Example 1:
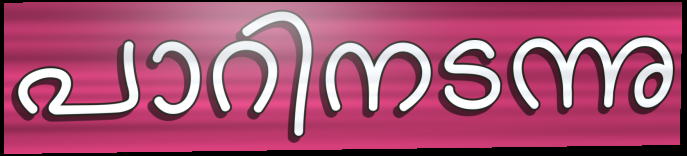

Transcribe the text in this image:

പാറിനടന്നു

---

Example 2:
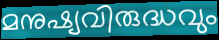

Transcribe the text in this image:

മനുഷ്യവിരുദ്ധവും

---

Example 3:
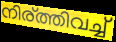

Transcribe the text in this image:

നിര്ത്തിവച്ച്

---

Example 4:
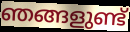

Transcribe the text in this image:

ഞങ്ങളുണ്ട്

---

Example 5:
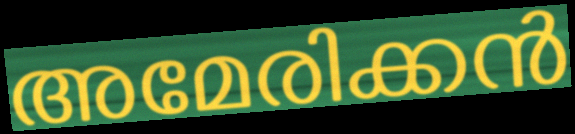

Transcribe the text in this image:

അമേരിക്കൻ